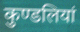
कुण्डलियां